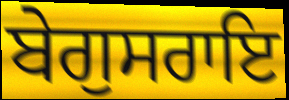
ਬੇਗੁਸਰਾਇ